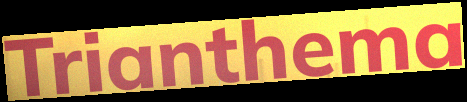
Trianthema